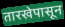
तारखेपासून